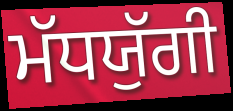
ਮੱਧਯੁੱਗੀ